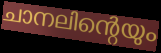
ചാനലിന്റെയും